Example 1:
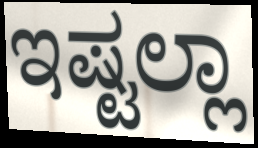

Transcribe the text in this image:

ಇಷ್ಟಲ್ಲಾ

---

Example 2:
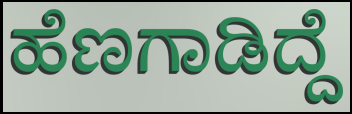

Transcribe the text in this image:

ಹೆಣಗಾಡಿದ್ದೆ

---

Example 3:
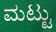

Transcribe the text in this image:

ಮಟ್ಟು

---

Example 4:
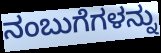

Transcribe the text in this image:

ನಂಬುಗೆಗಳನ್ನು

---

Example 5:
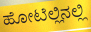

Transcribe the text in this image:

ಹೋಟೆಲ್ಲಿನಲ್ಲಿ